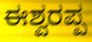
ಈಶ್ವರಪ್ಪ